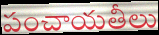
పంచాయతీలు